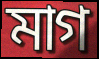
মাগ